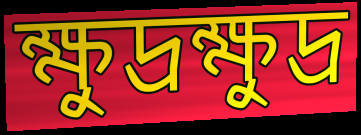
ক্ষুদ্রক্ষুদ্র